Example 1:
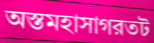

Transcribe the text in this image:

অস্তমহাসাগরতট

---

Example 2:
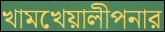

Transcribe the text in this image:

খামখেয়ালীপনার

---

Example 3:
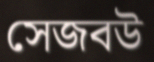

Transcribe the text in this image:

সেজবউ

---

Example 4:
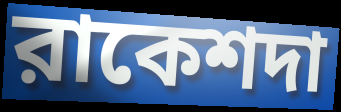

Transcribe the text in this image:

রাকেশদা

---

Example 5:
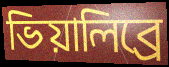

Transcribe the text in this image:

ভিয়ালিব্রে